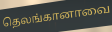
தெலங்கானாவை